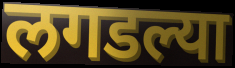
लगडल्या